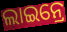
ଲାଇନ୍ରେ